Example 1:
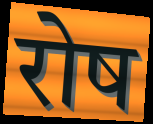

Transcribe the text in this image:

रोष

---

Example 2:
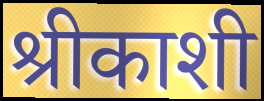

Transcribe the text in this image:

श्रीकाशी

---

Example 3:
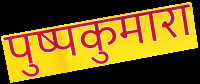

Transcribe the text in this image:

पुष्पकुमारा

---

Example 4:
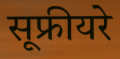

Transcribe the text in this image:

सूफ्रीयरे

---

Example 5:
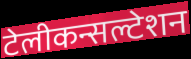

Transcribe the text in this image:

टेलीकन्सल्टेशन